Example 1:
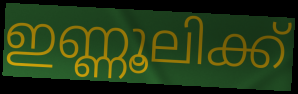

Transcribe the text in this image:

ഇണ്ണൂലിക്ക്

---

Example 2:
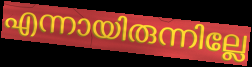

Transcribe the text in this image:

എന്നായിരുന്നില്ലേ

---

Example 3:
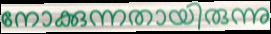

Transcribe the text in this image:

നോക്കുന്നതായിരുന്നു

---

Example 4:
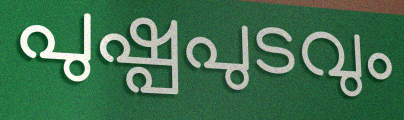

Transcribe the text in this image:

പുഷ്പപുടവും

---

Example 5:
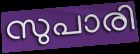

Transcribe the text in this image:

സുപാരി